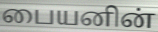
பையனின்